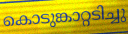
കൊടുങ്കാറ്റടിച്ചു